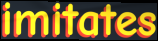
imitates